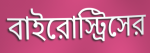
বাইরোস্ট্রিসের